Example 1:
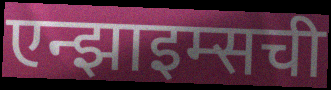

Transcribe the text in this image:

एन्झाइम्सची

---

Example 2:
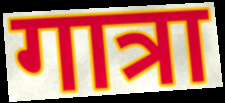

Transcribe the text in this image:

गात्रा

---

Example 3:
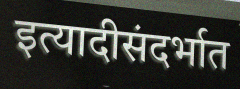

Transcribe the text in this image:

इत्यादीसंदर्भात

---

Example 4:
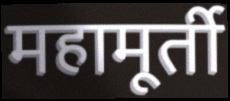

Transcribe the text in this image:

महामूर्ती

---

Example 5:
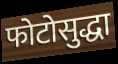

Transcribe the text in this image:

फोटोसुद्धा